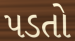
પડતો